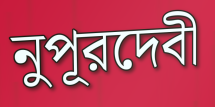
নুপূরদেবী